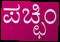
ಪಚ್ಛಿಂ